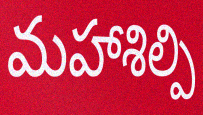
మహాశిల్పి